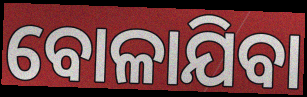
ବୋଳାଯିବା